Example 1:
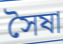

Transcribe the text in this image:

সৈষা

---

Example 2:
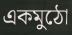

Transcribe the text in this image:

একমুঠো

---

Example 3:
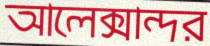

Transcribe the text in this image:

আলেক্সান্দর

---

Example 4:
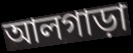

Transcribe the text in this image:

আলগাড়া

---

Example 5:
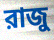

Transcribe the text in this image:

রাজু